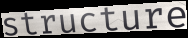
structure